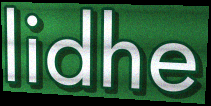
lidhe